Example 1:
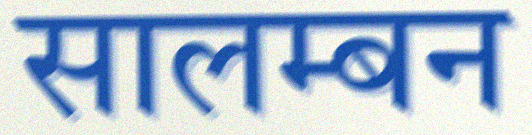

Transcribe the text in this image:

सालम्बन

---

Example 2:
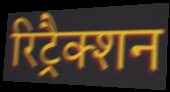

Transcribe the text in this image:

रिट्रैक्शन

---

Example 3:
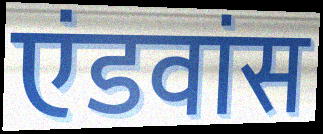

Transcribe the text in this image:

एंडवांस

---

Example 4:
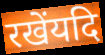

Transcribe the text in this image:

रखेंयदि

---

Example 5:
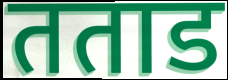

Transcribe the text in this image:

तताड